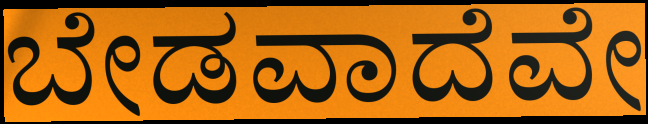
ಬೇಡವಾದೆವೇ